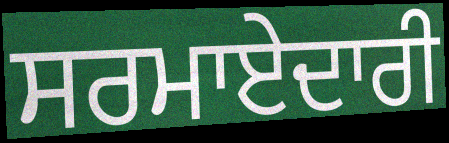
ਸਰਮਾਏਦਾਰੀ